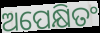
ଅପେକ୍ଷିତଂ